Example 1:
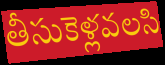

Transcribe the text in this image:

తీసుకెళ్లవలసి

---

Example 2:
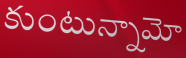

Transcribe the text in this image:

కుంటున్నామో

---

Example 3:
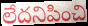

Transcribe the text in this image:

లేదనిపించి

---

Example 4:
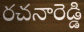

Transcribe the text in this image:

రచనారెడ్డి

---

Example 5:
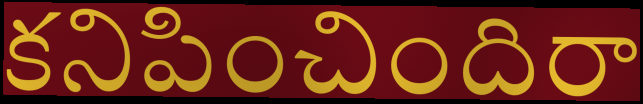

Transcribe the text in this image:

కనిపించిందిరా